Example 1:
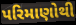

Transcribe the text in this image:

પરિમાણોથી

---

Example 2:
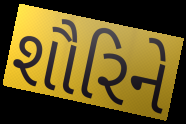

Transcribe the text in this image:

શૌરિને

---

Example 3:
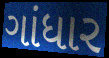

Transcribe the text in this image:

ગાંધાર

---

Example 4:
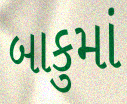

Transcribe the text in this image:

બાકુમાં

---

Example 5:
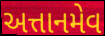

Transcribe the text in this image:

અત્તાનમેવ